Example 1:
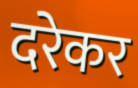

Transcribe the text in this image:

दरेकर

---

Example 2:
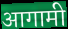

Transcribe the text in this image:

आगामी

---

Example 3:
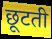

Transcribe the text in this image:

छूटती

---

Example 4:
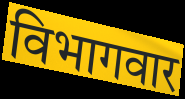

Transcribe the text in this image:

विभागवार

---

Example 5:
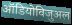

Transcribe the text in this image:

ऑडियोविजुअल